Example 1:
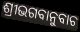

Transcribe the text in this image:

ଶ୍ରୀଭଗବାନୁବାଚ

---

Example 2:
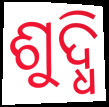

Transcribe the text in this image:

ଶୁଦ୍ଧି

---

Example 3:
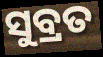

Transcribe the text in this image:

ସୁବ୍ରତ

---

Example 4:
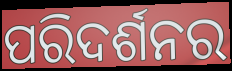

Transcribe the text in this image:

ପରିଦର୍ଶନର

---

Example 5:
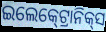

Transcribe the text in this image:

ଇଲେକ୍‍ଟ୍ରୋନିକ୍‍ସ